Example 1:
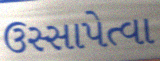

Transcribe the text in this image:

ઉસ્સાપેત્વા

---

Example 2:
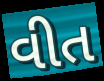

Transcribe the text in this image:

વીત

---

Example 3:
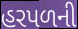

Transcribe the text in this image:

હરપળની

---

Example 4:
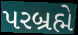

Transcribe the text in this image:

પરબ્રહ્મે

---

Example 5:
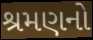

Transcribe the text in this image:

શ્રમણનો